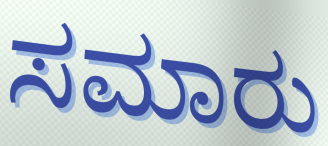
ಸಮಾರು